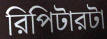
রিপিটারটা